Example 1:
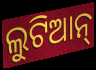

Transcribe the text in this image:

ଲୁଟିଆନ୍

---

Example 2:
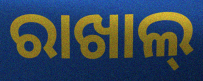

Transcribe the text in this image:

ରାଖାଲ୍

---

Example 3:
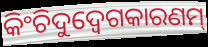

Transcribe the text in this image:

କିଂଚିଦୁଦ୍ବେଗକାରଣମ୍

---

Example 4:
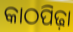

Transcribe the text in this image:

କାଠପିଢ଼ା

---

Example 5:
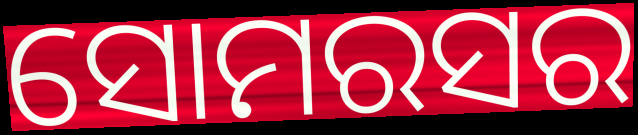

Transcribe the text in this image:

ସୋମରସର